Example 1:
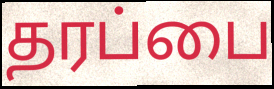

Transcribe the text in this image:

தரப்பை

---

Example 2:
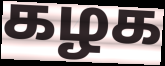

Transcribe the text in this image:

கழக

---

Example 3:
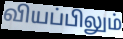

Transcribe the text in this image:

வியப்பிலும்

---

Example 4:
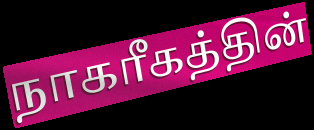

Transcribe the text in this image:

நாகரீகத்தின்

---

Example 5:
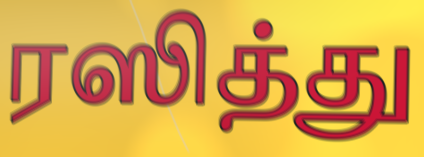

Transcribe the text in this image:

ரஸித்து